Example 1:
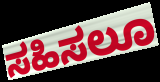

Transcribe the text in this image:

ಸಹಿಸಲೂ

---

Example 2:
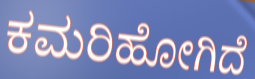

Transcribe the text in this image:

ಕಮರಿಹೋಗಿದೆ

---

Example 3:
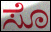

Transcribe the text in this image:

ಸೊ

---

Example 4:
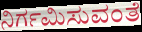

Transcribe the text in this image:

ನಿರ್ಗಮಿಸುವಂತೆ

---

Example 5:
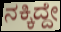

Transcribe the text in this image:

ನಕ್ಕಿದ್ದೇ